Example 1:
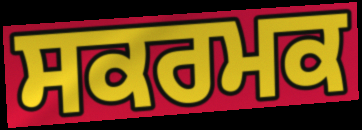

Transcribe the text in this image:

ਸਕਰਮਕ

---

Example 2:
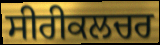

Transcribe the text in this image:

ਸੀਰੀਕਲਚਰ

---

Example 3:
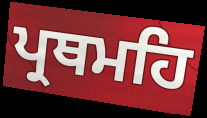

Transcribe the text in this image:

ਪ੍ਰਥਮਹਿ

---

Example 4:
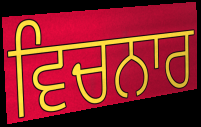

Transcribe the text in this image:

ਵਿਚਨਾਰ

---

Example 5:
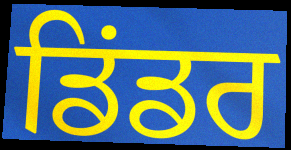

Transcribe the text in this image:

ਡਿਂਡਰ